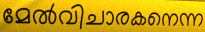
മേൽവിചാരകനെന്ന